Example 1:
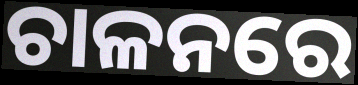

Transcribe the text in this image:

ଚାଳନରେ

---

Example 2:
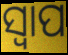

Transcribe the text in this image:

ସ୍ବାପ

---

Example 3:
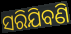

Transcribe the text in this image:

ସରିଯିବଣି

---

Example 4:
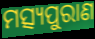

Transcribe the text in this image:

ମତ୍ସ୍ୟପୁରାଣ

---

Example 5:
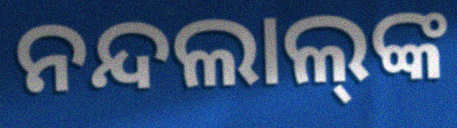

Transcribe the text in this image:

ନନ୍ଦଲାଲ୍‌ଙ୍କ